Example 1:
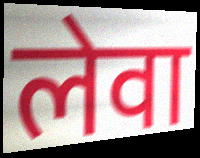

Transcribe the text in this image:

लेवा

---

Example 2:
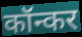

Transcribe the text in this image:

कॉन्कर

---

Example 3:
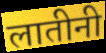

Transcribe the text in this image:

लातीनी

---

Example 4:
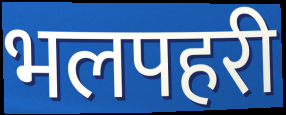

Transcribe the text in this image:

भलपहरी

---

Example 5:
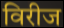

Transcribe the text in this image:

विरीज